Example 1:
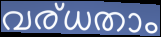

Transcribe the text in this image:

വര്ധതാം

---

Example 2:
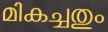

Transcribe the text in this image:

മികച്ചതും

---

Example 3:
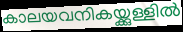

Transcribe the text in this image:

കാലയവനികയ്ക്കുള്ളിൽ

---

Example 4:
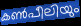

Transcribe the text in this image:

കൺപീലിയും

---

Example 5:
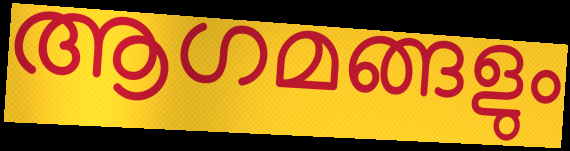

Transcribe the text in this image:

ആഗമങ്ങളും